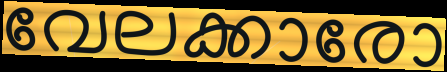
വേലക്കാരോ